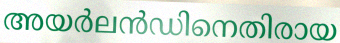
അയർലൻഡിനെതിരായ